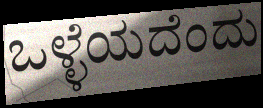
ಒಳ್ಳೆಯದೆಂದು